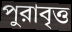
পুরাবৃত্ত